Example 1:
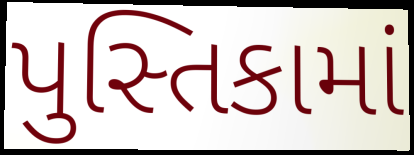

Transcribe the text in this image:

પુસ્તિકામાં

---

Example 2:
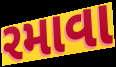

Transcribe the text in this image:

રમાવા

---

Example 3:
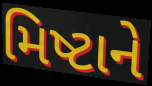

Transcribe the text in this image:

મિષ્ટાને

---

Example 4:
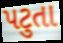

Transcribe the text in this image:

પટુતા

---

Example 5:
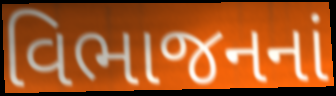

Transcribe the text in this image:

વિભાજનનાં